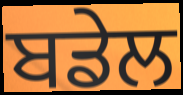
ਬਡੇਲ